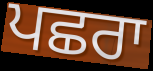
ਪਛਰਾ